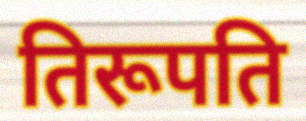
तिरूपति